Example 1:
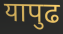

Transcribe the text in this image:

यापुढ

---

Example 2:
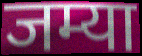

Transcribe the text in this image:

जम्या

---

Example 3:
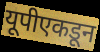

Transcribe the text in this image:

यूपीएकडून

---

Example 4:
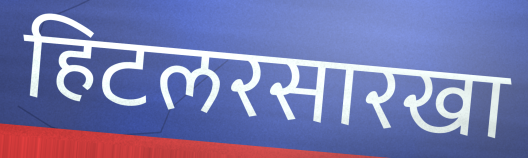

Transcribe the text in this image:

हिटलरसारखा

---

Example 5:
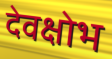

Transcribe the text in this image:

देवक्षोभ